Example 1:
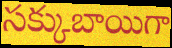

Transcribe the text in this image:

సక్కుబాయిగా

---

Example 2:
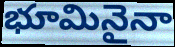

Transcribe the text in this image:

భూమినైనా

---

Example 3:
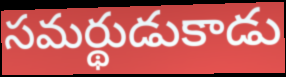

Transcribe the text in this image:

సమర్థుడుకాడు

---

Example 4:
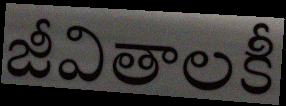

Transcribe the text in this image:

జీవితాలకీ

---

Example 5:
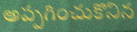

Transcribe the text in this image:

అప్పగించుకొనిన